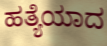
ಹತ್ಯೆಯಾದ